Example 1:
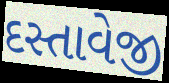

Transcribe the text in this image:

દસ્તાવેજી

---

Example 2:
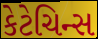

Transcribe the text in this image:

કેટેચિન્સ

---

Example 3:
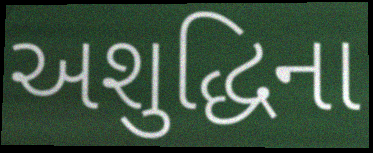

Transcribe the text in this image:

અશુદ્ધિના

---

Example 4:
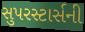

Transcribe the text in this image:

સુપરસ્ટાર્સની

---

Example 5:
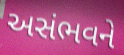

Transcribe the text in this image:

અસંભવને